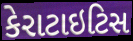
કેરાટાઇટિસ